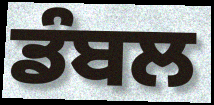
ਡੰਬਲ